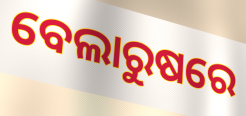
ବେଲାରୁଷରେ